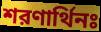
শরণার্থিনঃ